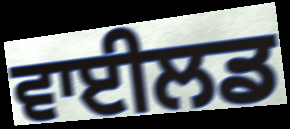
ਵਾਈਲਡ